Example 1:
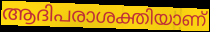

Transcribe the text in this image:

ആദിപരാശക്തിയാണ്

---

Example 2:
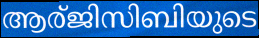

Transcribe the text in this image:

ആര്ജിസിബിയുടെ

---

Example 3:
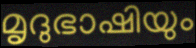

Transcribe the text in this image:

മൃദുഭാഷിയും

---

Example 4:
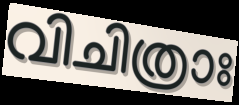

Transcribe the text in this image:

വിചിത്രാഃ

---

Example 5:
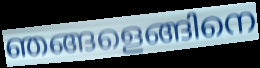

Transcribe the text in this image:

ഞങ്ങളെങ്ങിനെ